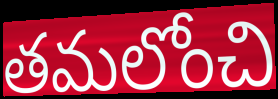
తమలోంచి